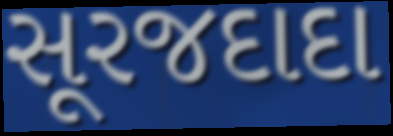
સૂરજદાદા